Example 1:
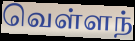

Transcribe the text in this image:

வெள்ளந்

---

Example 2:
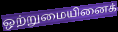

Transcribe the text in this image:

ஒற்றுமையினைக்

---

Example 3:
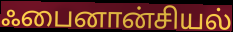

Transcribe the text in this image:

ஃபைனான்சியல்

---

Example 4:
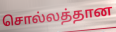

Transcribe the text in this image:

சொல்லத்தான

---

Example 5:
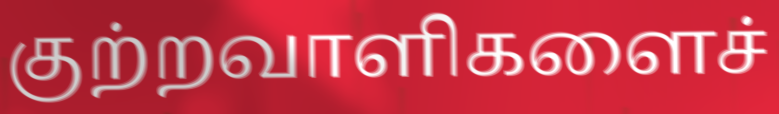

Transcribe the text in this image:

குற்றவாளிகளைச்